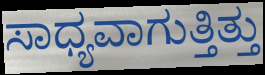
ಸಾಧ್ಯವಾಗುತ್ತಿತ್ತು